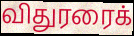
விதுரரைக்